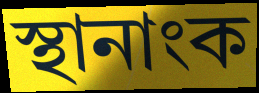
স্থানাংক